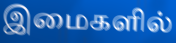
இமைகளில்